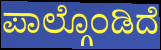
ಪಾಲ್ಗೊಂಡಿದೆ